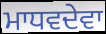
ਮਾਧਵਦੇਵਾ